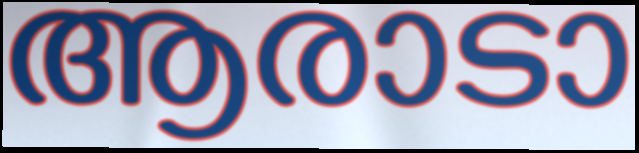
ആരാടാ